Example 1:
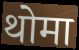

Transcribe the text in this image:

थोमा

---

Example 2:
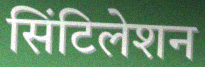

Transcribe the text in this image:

सिंटिलेशन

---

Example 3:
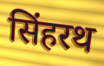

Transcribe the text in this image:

सिंहरथ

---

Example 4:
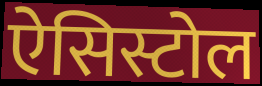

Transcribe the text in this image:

ऐसिस्टोल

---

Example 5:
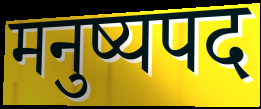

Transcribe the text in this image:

मनुष्यपद